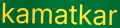
kamatkar